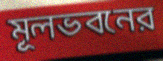
মূলভবনের